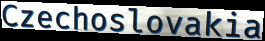
Czechoslovakia